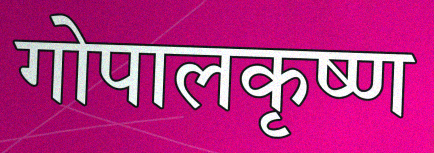
गोपालकृष्ण